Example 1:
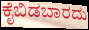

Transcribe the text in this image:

ಕೈಬಿಡಬಾರದು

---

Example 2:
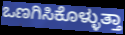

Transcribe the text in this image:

ಒಣಗಿಸಿಕೊಳ್ಳುತ್ತಾ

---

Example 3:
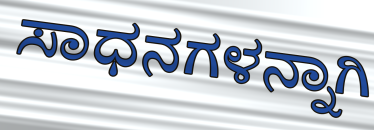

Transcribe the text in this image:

ಸಾಧನಗಳನ್ನಾಗಿ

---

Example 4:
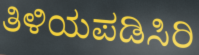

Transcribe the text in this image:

ತಿಳಿಯಪಡಿಸಿರಿ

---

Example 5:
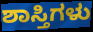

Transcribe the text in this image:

ಶಾಸ್ತಿಗಳು